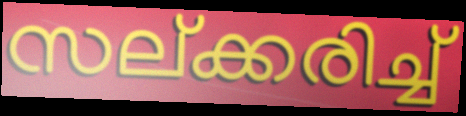
സല്ക്കരിച്ച്